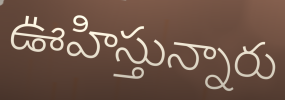
ఊహిస్తున్నారు